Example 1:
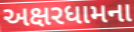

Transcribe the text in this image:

અક્ષરધામના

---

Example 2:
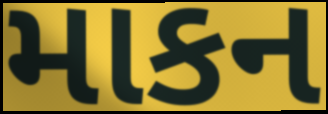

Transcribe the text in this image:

માકન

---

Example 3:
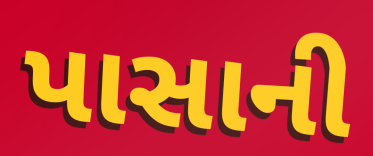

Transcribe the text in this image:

પાસાની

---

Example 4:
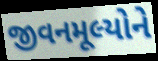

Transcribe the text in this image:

જીવનમૂલ્યોને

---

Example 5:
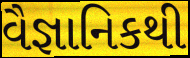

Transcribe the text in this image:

વૈજ્ઞાનિકથી